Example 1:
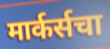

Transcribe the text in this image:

मार्कर्सचा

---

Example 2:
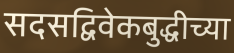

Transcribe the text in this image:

सदसद्विवेकबुद्धीच्या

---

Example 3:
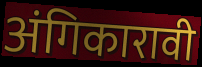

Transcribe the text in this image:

अंगिकारावी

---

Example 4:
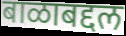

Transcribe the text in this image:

बाळाबद्दल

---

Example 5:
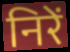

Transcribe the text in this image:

निरें